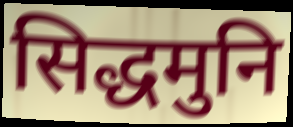
सिद्धमुनि